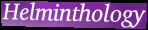
Helminthology